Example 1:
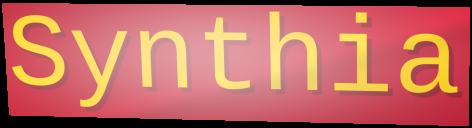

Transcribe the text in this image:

Synthia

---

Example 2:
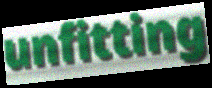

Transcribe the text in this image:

unfitting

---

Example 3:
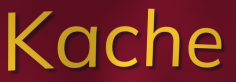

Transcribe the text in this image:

Kache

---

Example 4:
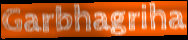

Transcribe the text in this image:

Garbhagriha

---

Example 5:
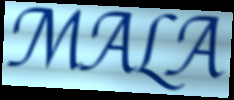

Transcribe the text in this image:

MALA